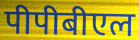
पीपीबीएल